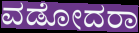
ವಡೋದರಾ